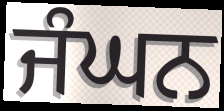
ਜੰਘਨ